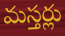
మస్తర్లు